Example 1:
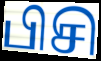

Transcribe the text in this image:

பிசி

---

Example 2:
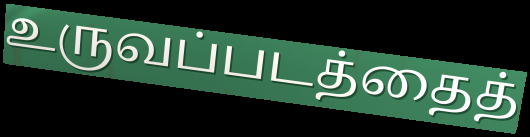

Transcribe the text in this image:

உருவப்படத்தைத்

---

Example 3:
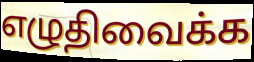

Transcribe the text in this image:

எழுதிவைக்க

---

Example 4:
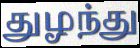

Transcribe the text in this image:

துழந்து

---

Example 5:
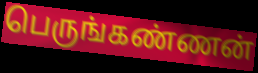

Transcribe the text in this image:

பெருங்கண்ணன்